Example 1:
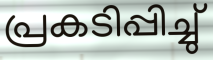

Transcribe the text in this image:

പ്രകടിപ്പിച്ചു്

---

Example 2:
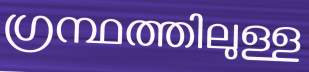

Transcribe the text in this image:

ഗ്രന്ഥത്തിലുള്ള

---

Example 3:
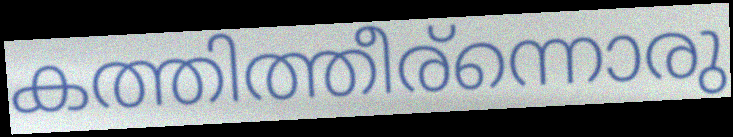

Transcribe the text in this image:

കത്തിത്തീര്ന്നൊരു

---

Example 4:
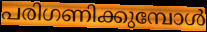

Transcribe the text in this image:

പരിഗണിക്കുമ്പോൾ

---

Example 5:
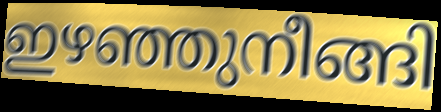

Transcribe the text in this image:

ഇഴഞ്ഞുനീങ്ങി